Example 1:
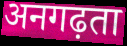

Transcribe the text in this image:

अनगढ़ता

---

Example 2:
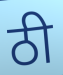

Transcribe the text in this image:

ठी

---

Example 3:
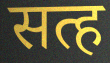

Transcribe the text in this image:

सत्ह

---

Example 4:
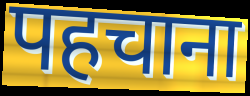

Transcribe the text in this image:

पहचाना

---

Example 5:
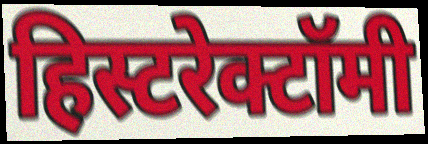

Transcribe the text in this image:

हिस्टरेक्टॉमी